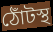
ঠোঁটস্থ